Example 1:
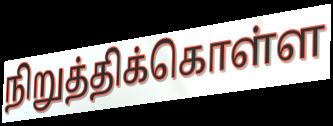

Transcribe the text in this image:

நிறுத்திக்கொள்ள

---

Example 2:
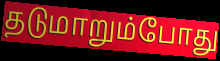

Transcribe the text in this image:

தடுமாறும்போது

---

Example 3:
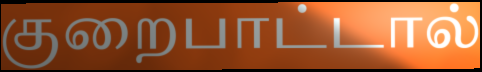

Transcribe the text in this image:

குறைபாட்டால்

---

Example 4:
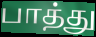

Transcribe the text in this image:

பாத்து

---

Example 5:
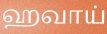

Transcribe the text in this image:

ஹவாய்